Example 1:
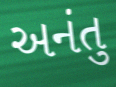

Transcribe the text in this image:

અનંતુ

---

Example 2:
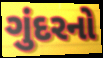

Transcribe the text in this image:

ગુંદરનો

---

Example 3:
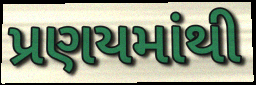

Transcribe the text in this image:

પ્રણયમાંથી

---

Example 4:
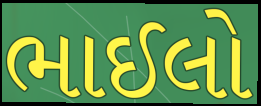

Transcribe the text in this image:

ભાઈલો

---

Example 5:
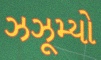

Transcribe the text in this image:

ઝઝૂમ્યો